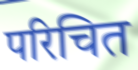
परिचित